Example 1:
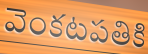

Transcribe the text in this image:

వెంకటపతికి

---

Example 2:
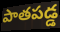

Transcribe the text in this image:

పాతపడ్డ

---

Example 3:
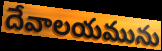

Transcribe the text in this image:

దేవాలయమును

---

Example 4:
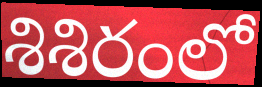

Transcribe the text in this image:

శిశిరంలో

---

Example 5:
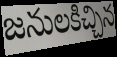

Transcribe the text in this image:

జనులకిచ్చిన